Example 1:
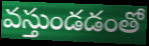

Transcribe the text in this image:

వస్తుండడంతో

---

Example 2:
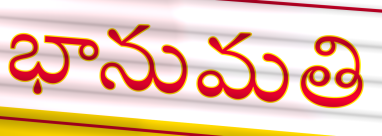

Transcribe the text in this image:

భానుమతి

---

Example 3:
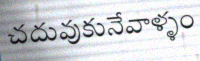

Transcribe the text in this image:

చదువుకునేవాళ్ళం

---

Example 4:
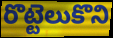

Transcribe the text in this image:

రొట్టెలుకొని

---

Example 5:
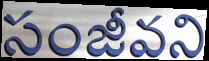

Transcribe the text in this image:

సంజీవని